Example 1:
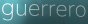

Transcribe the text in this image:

guerrero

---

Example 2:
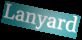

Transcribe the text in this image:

Lanyard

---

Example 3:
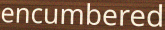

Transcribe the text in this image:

encumbered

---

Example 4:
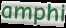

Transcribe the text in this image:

amphi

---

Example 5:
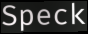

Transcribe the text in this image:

Speck